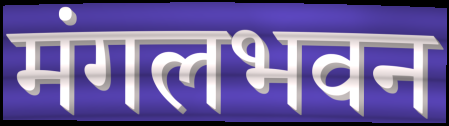
मंगलभवन